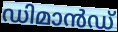
ഡിമാൻഡ്